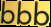
bbb